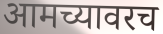
आमच्यावरच